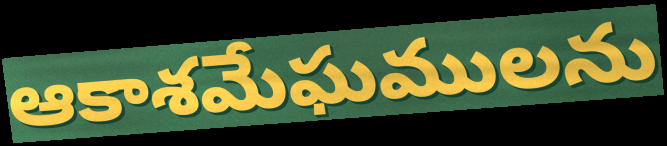
ఆకాశమేఘములను